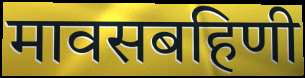
मावसबहिणी